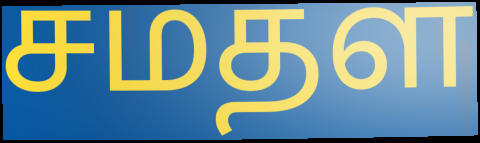
சமதள